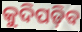
କୁଦିପଡ଼ିବ